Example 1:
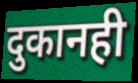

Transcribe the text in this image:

दुकानही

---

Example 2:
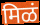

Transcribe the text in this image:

मिळं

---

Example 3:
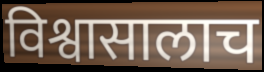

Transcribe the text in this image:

विश्वासालाच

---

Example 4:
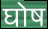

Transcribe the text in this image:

घोष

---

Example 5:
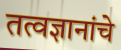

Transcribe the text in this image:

तत्वज्ञानांचे